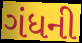
ગંધની